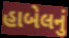
હાબેલનું